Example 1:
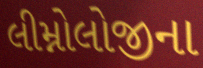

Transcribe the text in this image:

લીમ્નોલોજીના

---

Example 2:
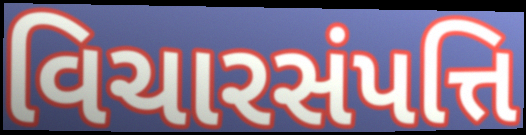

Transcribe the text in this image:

વિચારસંપત્તિ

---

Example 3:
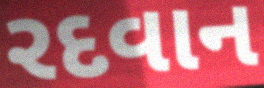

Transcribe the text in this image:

રદવાન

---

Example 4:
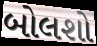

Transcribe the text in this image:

બોલશો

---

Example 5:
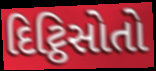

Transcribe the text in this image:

દિટ્ઠિસોતો